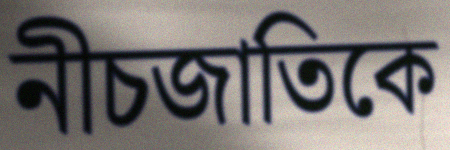
নীচজাতিকে